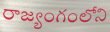
రాజ్యంగంలోని